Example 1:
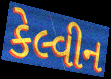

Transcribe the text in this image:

કેલ્વીન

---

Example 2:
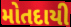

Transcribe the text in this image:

મોતદાયી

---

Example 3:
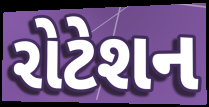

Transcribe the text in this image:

રોટેશન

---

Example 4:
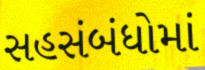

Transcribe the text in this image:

સહસંબંધોમાં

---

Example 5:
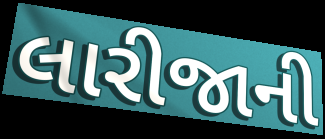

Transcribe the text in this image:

લારીજાની